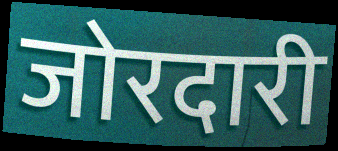
जोरदारी